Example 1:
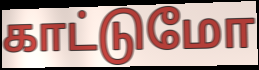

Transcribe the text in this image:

காட்டுமோ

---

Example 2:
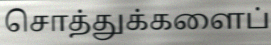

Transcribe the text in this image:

சொத்துக்களைப்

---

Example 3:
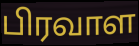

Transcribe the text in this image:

பிரவாள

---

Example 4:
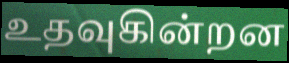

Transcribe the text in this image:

உதவுகின்றன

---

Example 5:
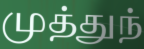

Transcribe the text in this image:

முத்துந்